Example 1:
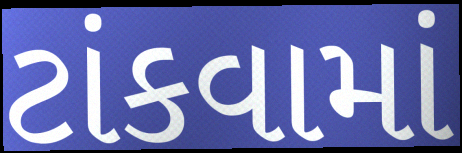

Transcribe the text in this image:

ટાંકવામાં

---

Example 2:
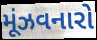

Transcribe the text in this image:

મૂંઝવનારો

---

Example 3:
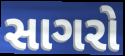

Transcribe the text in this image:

સાગરો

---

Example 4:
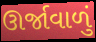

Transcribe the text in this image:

ઊર્જાવાળું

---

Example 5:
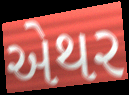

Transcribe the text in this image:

એથર